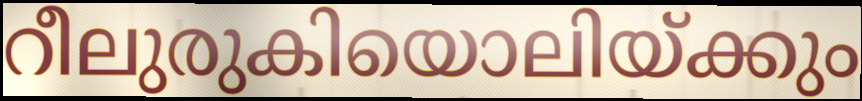
റീലുരുകിയൊലിയ്ക്കും